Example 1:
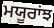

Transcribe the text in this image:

ਮਯੂਰਾਂਝ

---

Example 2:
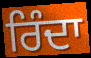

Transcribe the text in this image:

ਰਿੰਦਾ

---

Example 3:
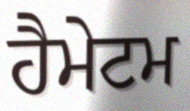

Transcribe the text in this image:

ਹੈਮੇਟਮ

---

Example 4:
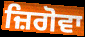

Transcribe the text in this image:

ਜ਼ਿਗੋਵਾ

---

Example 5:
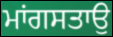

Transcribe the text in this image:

ਮਾਂਗਸਤਾਉ